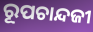
ରୂପଚାନ୍ଦଜୀ